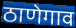
ठाणेगाव